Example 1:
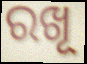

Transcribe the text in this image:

ରଖୂ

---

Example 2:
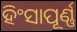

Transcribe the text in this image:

ହିଂସାପୂର୍ଣ୍ଣ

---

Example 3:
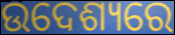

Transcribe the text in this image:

ଉଦେଶ୍ୟରେ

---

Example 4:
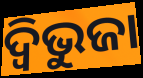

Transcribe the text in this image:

ଦ୍ବିଭୁଜା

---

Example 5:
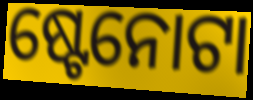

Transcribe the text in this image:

ଷ୍ଟେନୋଟା